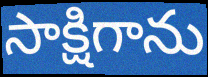
సాక్షిగాను